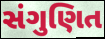
સંગુણિત